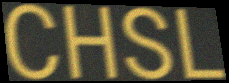
CHSL